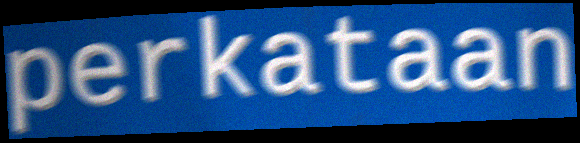
perkataan